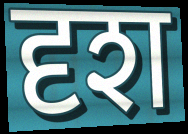
दृश